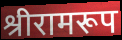
श्रीरामरूप